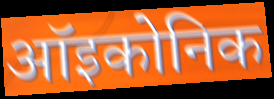
ऑइकोनिक